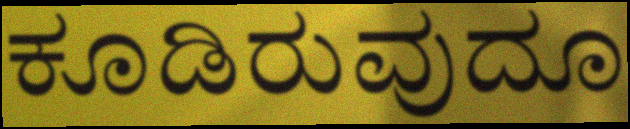
ಕೂಡಿರುವುದೂ